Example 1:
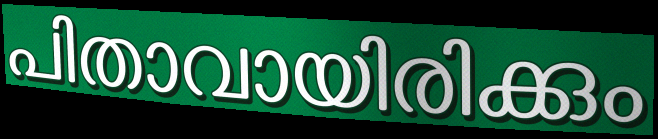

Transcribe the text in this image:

പിതാവായിരിക്കും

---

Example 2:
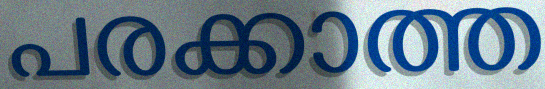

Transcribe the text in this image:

പരക്കാത്ത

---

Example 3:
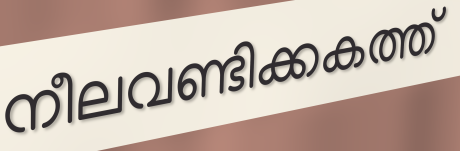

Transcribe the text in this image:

നീലവണ്ടിക്കകത്ത്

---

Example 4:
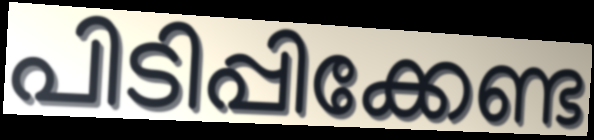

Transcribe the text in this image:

പിടിപ്പിക്കേണ്ട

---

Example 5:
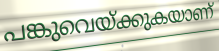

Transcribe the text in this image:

പങ്കുവെയ്ക്കുകയാണ്